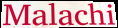
Malachi